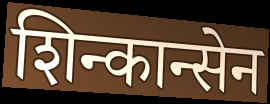
शिन्कान्सेन